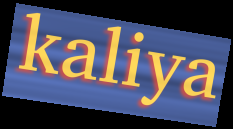
kaliya